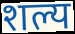
शल्‍य